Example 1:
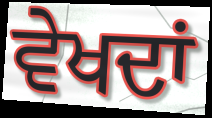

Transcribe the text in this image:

ਵੇਖਦਾਂ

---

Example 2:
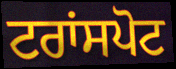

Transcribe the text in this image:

ਟਰਾਂਸਪੋਟ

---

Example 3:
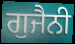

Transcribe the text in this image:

ਗੁਜੈਨੀ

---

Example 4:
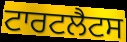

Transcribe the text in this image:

ਟਾਰਟਲੈਟਸ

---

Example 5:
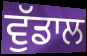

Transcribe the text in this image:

ਵੁੱਡਾਲ